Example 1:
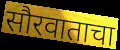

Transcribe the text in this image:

सौरवाताचा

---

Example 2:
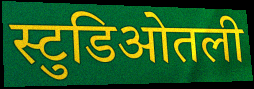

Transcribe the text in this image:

स्टुडिओतली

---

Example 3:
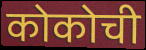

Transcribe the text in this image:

कोकोची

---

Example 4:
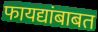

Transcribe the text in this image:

फायद्यांबाबत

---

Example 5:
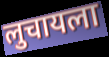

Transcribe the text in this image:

लुचायला